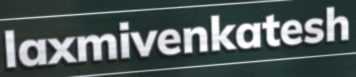
laxmivenkatesh